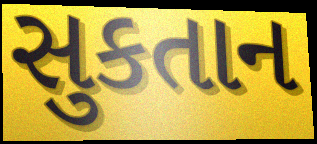
સુકતાન